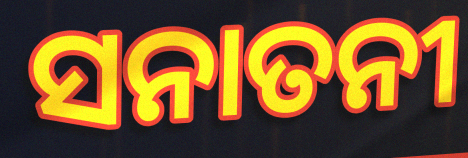
ସନାତନୀ